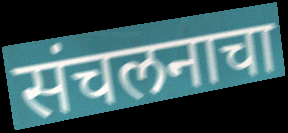
संचलनाचा